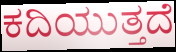
ಕದಿಯುತ್ತದೆ